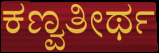
ಕಣ್ವತೀರ್ಥ